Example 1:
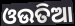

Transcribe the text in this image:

ଓଉତିଆ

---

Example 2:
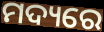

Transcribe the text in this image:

ମଦ୍ୟରେ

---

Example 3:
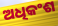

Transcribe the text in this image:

ଅଧିକଂଶ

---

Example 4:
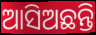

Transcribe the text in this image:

ଆସିଅଛନ୍ତି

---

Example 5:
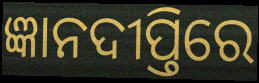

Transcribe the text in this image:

ଜ୍ଞାନଦୀପ୍ତିରେ